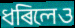
ধৰিলেও